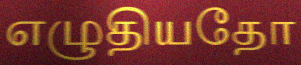
எழுதியதோ